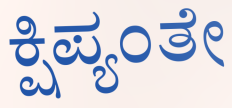
ಕ್ಷಿಪ್ಯಂತೇ